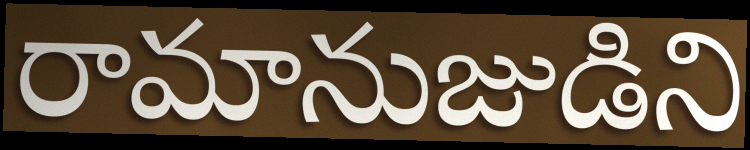
రామానుజుడిని